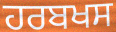
ਹਰਬਖਸ